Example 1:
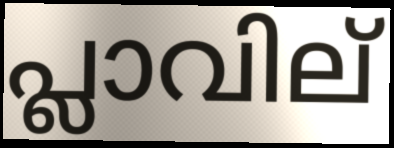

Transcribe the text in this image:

പ്ലാവില്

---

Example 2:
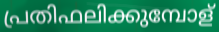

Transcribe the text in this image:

പ്രതിഫലിക്കുമ്പോള്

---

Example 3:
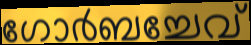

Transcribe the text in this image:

ഗോർബച്ചേവ്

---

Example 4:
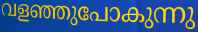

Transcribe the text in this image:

വളഞ്ഞുപോകുന്നു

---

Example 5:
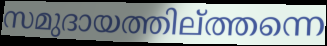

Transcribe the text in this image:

സമുദായത്തില്ത്തന്നെ